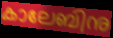
കാലേബിനു